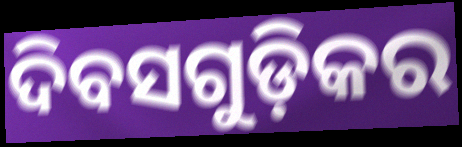
ଦିବସଗୁଡ଼ିକର